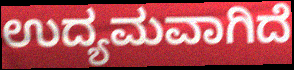
ಉದ್ಯಮವಾಗಿದೆ